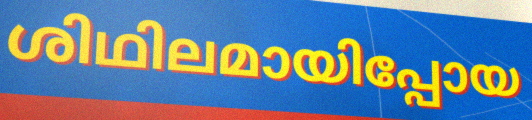
ശിഥിലമായിപ്പോയ